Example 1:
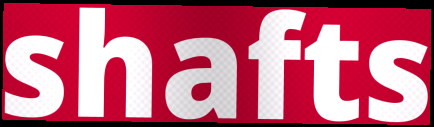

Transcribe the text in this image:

shafts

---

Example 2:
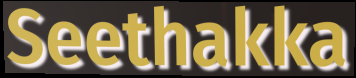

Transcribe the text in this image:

Seethakka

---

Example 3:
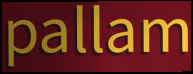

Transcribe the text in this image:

pallam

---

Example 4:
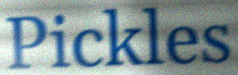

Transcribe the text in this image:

Pickles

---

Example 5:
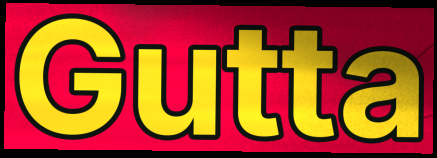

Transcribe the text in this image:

Gutta